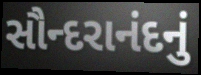
સૌન્દરાનંદનું